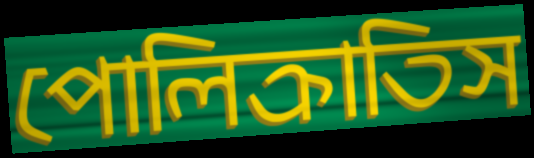
পোলিক্রাতিস